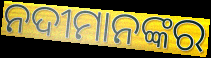
ନଦୀମାନଙ୍କର